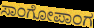
ಸಾಂಗೋಪಾಂಗ